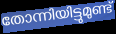
തോന്നിയിട്ടുമുണ്ട്